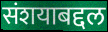
संशयाबद्दल